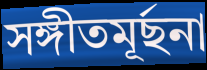
সঙ্গীতমূর্ছনা